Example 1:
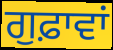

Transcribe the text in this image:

ਗੁਫ਼ਾਵਾਂ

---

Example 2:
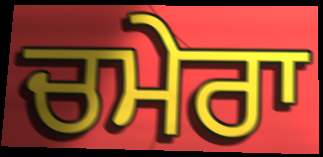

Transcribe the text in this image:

ਚਮੇਰਾ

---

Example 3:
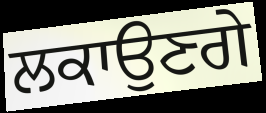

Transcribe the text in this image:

ਲਕਾਉਣਗੇ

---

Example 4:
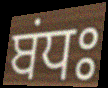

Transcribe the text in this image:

ਬਂਧਃ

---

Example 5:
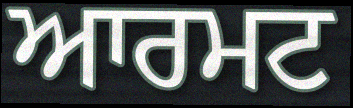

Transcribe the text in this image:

ਆਰਮਟ